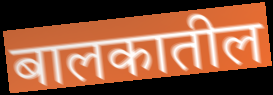
बालकातील